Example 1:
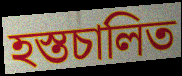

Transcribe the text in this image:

হস্তচালিত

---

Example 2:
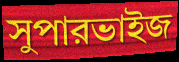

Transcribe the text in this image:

সুপারভাইজ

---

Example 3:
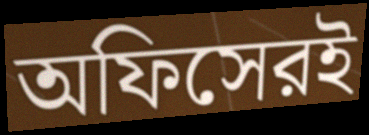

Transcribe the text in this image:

অফিসেরই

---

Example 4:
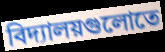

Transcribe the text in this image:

বিদ্যালয়গুলোতে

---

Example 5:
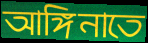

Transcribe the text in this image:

আঙ্গিনাতে